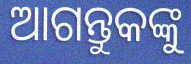
ଆଗନ୍ତୁକଙ୍କୁ